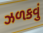
ઝળકવું